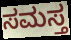
ಸಮಸ್ತ